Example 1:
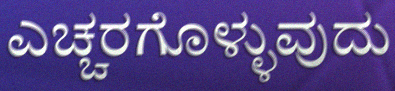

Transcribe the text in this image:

ಎಚ್ಚರಗೊಳ್ಳುವುದು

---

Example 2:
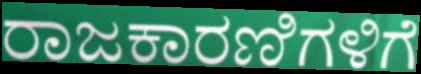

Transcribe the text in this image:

ರಾಜಕಾರಣಿಗಳಿಗೆ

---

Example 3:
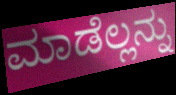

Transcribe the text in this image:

ಮಾಡೆಲ್ಲನ್ನು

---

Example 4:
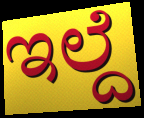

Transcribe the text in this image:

ಇಲ್ದೆ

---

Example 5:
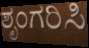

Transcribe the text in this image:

ಶೃಂಗರಿಸಿ